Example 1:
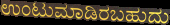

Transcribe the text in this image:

ಉಂಟುಮಾಡಿರಬಹುದು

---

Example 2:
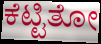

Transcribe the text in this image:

ಕೆಟ್ಟಿತೋ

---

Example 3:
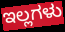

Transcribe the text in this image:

ಇಲ್ಲಗಳು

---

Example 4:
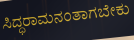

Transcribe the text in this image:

ಸಿದ್ಧರಾಮನಂತಾಗಬೇಕು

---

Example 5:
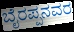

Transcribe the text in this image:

ಬೈರಪ್ಪನವರ